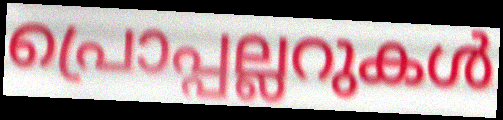
പ്രൊപ്പല്ലറുകൾ